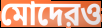
মোদেরও